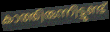
കാത്തിരുന്നിട്ടുണ്ട്